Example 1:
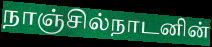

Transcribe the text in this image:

நாஞ்சில்நாடனின்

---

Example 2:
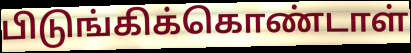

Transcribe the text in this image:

பிடுங்கிக்கொண்டாள்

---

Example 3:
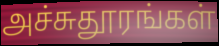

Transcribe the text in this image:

அச்சுதூரங்கள்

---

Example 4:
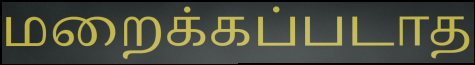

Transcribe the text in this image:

மறைக்கப்படாத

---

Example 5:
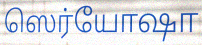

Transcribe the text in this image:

ஸெர்யோஷா